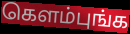
கெளம்புங்க